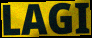
LAGI